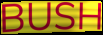
BUSH